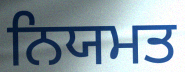
ਨਿਯਮਤ